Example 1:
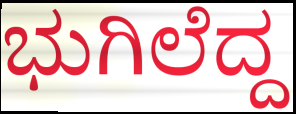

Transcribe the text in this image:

ಭುಗಿಲೆದ್ದ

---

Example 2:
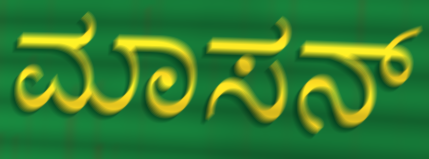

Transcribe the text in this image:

ಮಾಸನ್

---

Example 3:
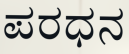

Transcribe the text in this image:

ಪರಧನ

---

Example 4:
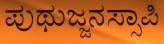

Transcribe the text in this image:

ಪುಥುಜ್ಜನಸ್ಸಾಪಿ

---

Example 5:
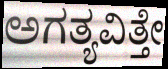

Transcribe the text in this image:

ಅಗತ್ಯವಿತ್ತೇ